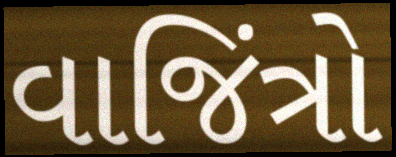
વાજિંત્રો